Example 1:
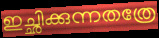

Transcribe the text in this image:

ഇച്ഛിക്കുന്നതത്രേ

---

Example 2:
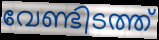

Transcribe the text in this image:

വേണ്ടിടത്ത്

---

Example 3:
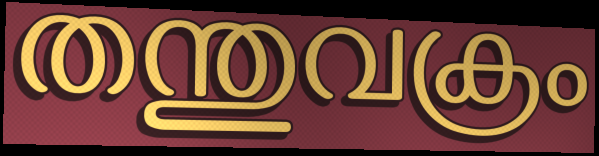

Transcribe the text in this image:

തന്തുവക്രം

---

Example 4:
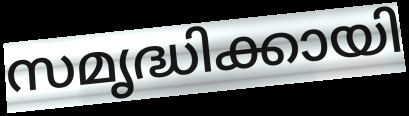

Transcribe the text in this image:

സമൃദ്ധിക്കായി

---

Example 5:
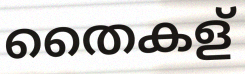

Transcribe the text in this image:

തൈകള്